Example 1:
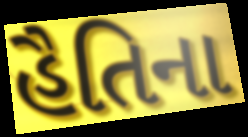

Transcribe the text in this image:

હૈતિના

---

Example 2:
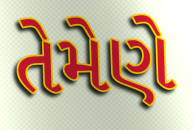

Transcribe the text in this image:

તેમેણે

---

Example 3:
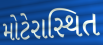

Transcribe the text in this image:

મોટેરાસ્થિત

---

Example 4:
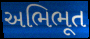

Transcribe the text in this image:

અભિભૂત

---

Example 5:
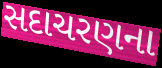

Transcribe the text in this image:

સદાચરણના